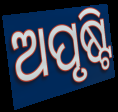
ଅପୃଷ୍ଟି